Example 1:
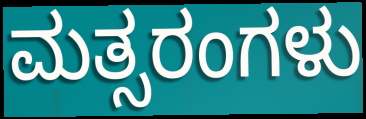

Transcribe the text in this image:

ಮತ್ಸರಂಗಳು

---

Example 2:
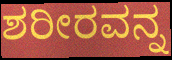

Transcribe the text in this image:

ಶರೀರವನ್ನ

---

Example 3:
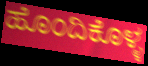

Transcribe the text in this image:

ಹೊಂದಿಕೊಳ್ಳ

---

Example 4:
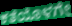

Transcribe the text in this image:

ಕತೆಯೊಳಗೇ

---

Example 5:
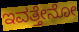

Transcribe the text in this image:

ಇವತ್ತೇನೋ